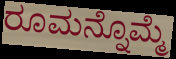
ರೂಮನ್ನೊಮ್ಮೆ